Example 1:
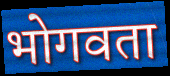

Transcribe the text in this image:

भोगवता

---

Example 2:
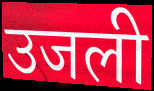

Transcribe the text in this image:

उजली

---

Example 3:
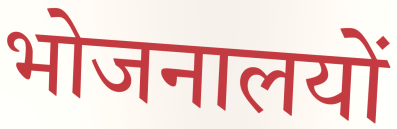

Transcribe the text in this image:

भोजनालयों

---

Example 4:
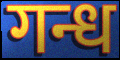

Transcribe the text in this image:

गन्ध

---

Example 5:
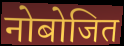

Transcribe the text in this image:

नोबोजित